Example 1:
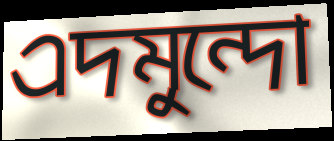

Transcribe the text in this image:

এদমুন্দো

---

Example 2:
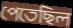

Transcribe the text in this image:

পেতেছিল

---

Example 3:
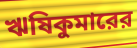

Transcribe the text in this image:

ঋষিকুমারের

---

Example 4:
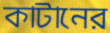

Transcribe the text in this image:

কাটানের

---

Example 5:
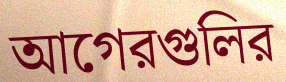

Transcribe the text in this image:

আগেরগুলির